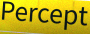
Percept